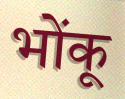
भोंकू